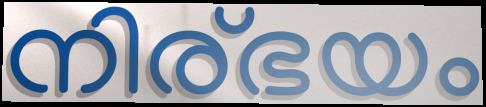
നിര്ഭയം